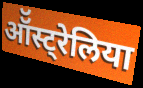
ऑॅस्ट्रेलिया